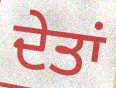
ਦੇਤਾਂ